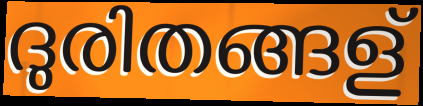
ദുരിതങ്ങള്